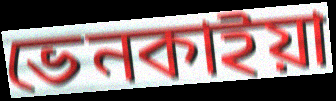
ভেনকাইয়া